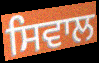
ਸਿਵਾਲ